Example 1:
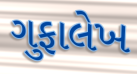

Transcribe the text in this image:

ગુફાલેખ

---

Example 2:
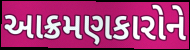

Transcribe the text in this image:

આક્રમણકારોને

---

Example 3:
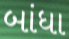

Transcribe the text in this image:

બાંધા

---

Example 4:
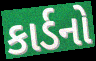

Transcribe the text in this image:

કાર્ડનો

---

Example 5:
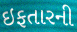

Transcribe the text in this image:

ઇફતારની